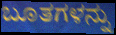
ಬೂತಗಳನ್ನು